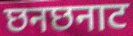
छनछनाट